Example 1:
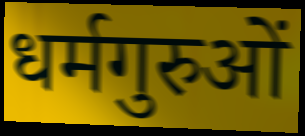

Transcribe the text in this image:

धर्मगुरुओं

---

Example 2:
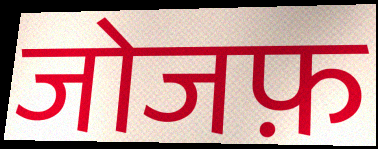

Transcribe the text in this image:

जोजफ़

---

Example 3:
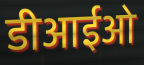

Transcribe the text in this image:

डीआईओ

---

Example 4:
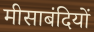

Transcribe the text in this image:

मीसाबंदियों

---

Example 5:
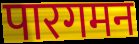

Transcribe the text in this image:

पारगमन